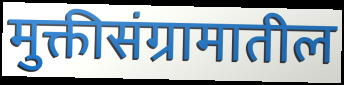
मुक्तीसंग्रामातील